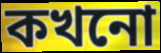
কখনো